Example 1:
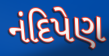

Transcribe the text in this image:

નંદિપેણ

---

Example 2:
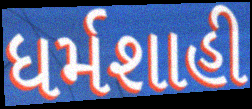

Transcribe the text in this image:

ધર્મશાહી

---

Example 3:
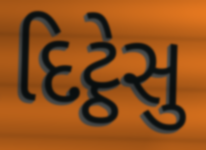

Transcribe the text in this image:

દિટ્ઠેસુ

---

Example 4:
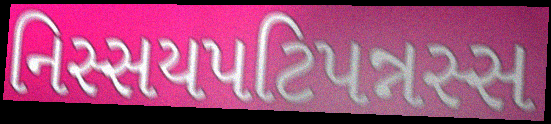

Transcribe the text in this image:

નિસ્સયપટિપન્નસ્સ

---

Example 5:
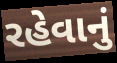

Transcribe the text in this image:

રહેવાનું